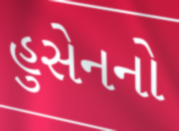
હુસેનનો